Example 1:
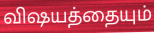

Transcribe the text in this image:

விஷயத்தையும்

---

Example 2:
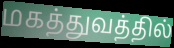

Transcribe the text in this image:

மகத்துவத்தில்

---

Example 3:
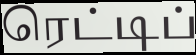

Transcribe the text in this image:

ரெட்டிப்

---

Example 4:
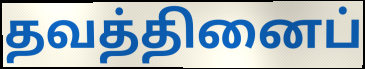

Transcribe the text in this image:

தவத்தினைப்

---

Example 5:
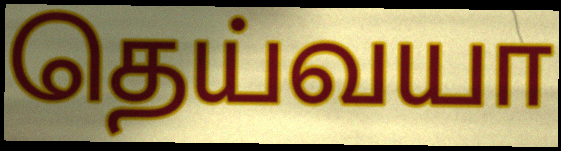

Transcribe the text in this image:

தெய்வயா